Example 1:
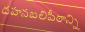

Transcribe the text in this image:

దహనబలిపీఠాన్ని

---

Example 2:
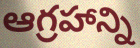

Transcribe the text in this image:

ఆగ్రహాన్ని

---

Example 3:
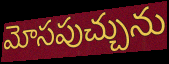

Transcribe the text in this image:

మోసపుచ్చును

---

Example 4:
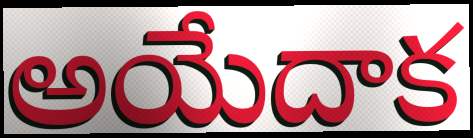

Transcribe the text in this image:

అయేదాక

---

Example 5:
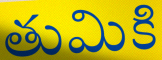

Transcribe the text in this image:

తుమికి